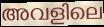
അവളിലെ